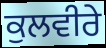
ਕੁਲਵੀਰੇ